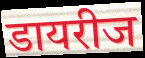
डायरीज